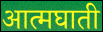
आत्मघाती